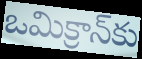
ఒమిక్రాన్‌కు